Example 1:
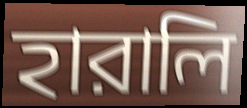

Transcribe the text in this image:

হারালি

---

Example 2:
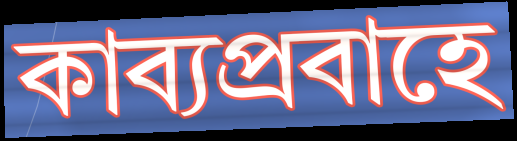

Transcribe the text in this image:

কাব্যপ্রবাহে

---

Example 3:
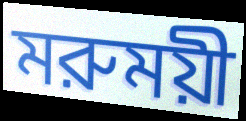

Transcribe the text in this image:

মরুময়ী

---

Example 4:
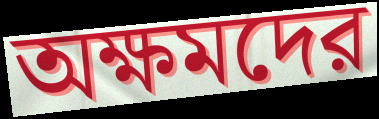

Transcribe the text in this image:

অক্ষমদের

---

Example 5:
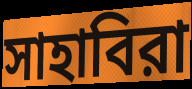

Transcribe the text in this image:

সাহাবিরা